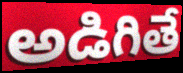
అడిగితే